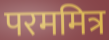
परममित्र